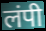
लंपी